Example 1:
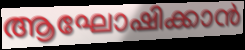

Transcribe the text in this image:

ആഘോഷിക്കാൻ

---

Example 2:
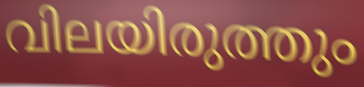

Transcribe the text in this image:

വിലയിരുത്തും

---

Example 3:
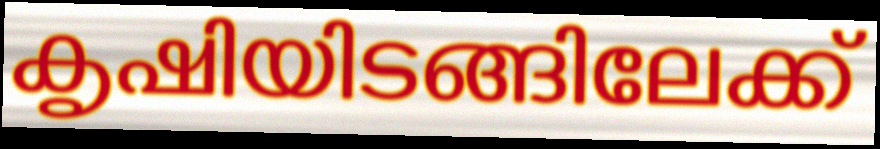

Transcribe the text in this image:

കൃഷിയിടങ്ങിലേക്ക്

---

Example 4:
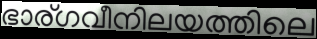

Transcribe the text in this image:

ഭാര്ഗവീനിലയത്തിലെ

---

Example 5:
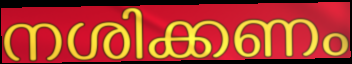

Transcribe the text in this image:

നശിക്കണം